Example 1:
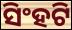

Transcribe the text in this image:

ସିଂହଟି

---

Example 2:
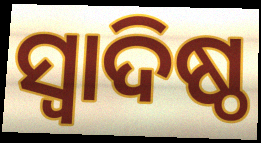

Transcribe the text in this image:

ସ୍ୱାଦିଷ୍ଠ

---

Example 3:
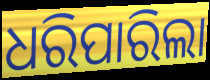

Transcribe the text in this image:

ଧରିପାରିଲା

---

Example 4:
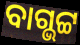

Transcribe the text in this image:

ବାଗ୍ଭଟ୍ଟ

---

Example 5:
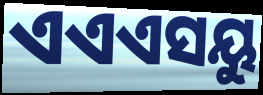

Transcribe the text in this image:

ଏଏଏସୟୁ